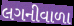
લગનીવાળા